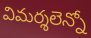
విమర్శలెన్నో